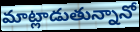
మాట్లాడుతున్నానో